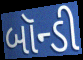
બૉન્ડી